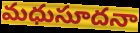
మధుసూదనా